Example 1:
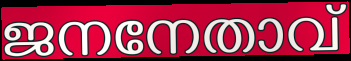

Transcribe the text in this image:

ജനനേതാവ്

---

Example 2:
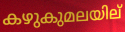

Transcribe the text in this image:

കഴുകുമലയില്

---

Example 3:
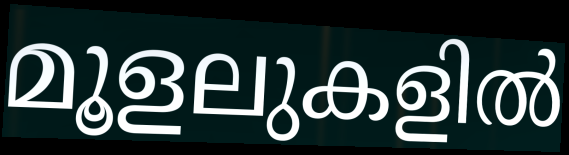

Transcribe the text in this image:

മൂളലുകളിൽ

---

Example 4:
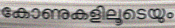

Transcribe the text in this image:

കോണുകളിലൂടെയും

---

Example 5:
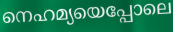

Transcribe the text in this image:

നെഹമ്യയെപ്പോലെ